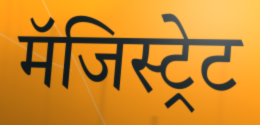
मॅजिस्ट्रेट